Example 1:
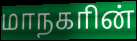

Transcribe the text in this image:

மாநகரின்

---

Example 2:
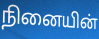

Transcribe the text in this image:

நினையின்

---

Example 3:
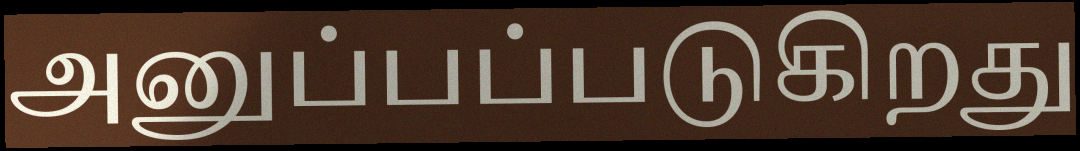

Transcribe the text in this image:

அனுப்பப்படுகிறது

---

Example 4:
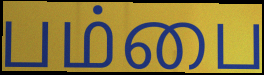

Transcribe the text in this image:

பம்பை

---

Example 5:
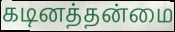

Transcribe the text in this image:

கடினத்தன்மை